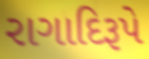
રાગાદિરૂપે